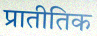
प्रातीतिक